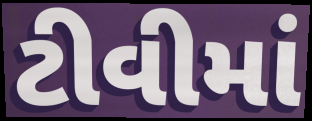
ટીવીમાં